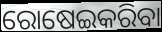
ରୋଷେଇକରିବା